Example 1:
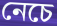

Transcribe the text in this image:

নেচে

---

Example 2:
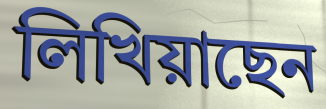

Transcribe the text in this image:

লিখিয়াছেন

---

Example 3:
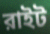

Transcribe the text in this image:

রাইট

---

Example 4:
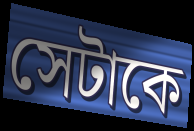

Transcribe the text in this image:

সেটাকে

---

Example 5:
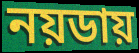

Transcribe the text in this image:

নয়ডায়